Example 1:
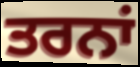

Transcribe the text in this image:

ਤਰਨਾਂ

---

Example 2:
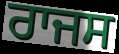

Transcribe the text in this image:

ਰਾਜਸ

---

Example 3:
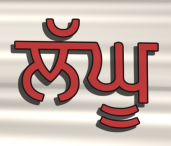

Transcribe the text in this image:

ਲੱਘੂ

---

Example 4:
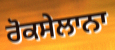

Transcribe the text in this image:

ਰੋਕਸੇਲਾਨਾ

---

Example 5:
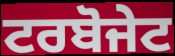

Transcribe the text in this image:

ਟਰਬੋਜੇਟ